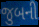
જુબની